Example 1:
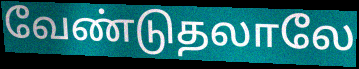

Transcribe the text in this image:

வேண்டுதலாலே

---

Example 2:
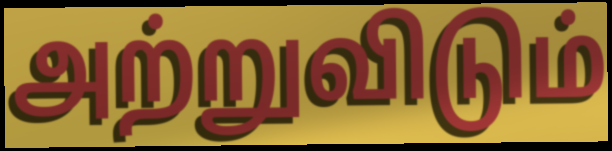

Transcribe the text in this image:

அற்றுவிடும்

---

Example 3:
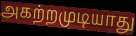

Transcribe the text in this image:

அகற்றமுடியாது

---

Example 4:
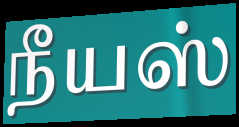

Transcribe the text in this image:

நீயஸ்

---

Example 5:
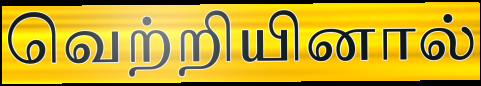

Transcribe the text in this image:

வெற்றியினால்